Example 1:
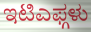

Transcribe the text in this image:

ಇಟಿಎಫ್ಗಳು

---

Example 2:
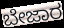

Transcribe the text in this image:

ಬೇಜಾರ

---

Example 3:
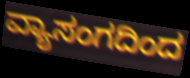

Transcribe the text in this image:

ವ್ಯಾಸಂಗದಿಂದ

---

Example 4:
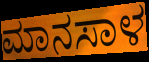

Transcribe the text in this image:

ಮಾನಸಾಳ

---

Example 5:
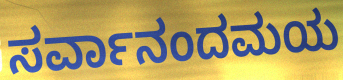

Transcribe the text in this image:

ಸರ್ವಾನಂದಮಯ